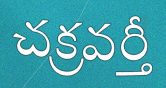
చక్రవర్తీ